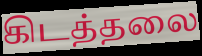
கிடத்தலை